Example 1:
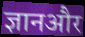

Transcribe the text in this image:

ज्ञानऔर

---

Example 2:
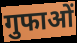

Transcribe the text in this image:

गुफाओं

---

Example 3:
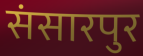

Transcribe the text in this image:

संसारपुर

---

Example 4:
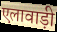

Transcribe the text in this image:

एलावाड़ी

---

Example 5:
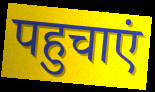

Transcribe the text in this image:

पहुचाएं